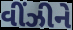
વીંઝીને